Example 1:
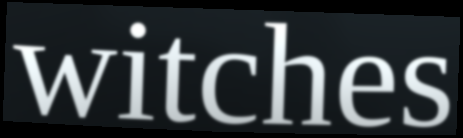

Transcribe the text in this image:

witches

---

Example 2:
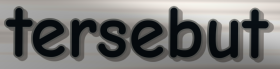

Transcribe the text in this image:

tersebut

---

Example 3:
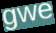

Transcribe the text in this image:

gwe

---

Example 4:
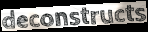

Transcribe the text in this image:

deconstructs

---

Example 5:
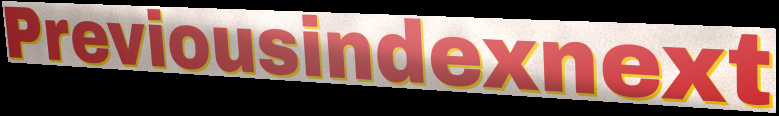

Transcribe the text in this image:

Previousindexnext